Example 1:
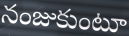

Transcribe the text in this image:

నంజుకుంటూ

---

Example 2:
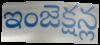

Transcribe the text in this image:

ఇంజెక్షన్ల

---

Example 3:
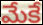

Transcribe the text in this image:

మేకే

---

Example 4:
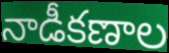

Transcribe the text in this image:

నాడీకణాల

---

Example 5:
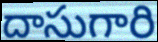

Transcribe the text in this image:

దాసుగారి